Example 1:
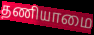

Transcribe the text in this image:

தணியாமை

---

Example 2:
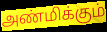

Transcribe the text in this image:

அண்மிக்கும்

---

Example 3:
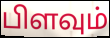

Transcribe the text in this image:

பிளவும்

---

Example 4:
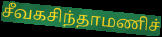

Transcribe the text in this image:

சீவகசிந்தாமணிச்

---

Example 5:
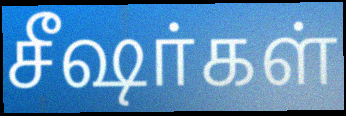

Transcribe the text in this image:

சீஷர்கள்